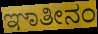
ಞಾತೀನಂ